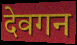
देवगन